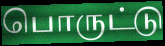
பொருட்டு